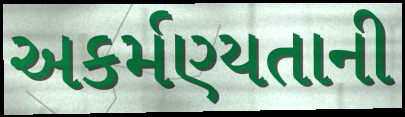
અકર્મણ્યતાની